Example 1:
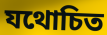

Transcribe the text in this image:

যথোচিত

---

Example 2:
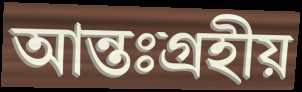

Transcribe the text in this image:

আন্তঃগ্রহীয়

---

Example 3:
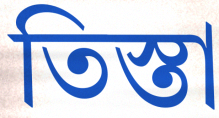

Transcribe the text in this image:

তিস্তা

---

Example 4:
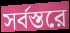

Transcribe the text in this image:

সর্বস্তরে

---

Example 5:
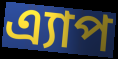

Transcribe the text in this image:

এ্যাপ